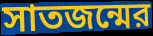
সাতজন্মের